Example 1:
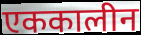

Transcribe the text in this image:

एककालीन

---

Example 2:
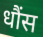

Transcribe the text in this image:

धौंस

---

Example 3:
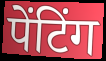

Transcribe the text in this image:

पेंटिंग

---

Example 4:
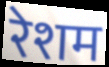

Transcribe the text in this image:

रेशम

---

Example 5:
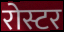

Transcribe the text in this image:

रोस्टर